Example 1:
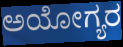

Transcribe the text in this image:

ಅಯೋಗ್ಯರ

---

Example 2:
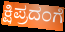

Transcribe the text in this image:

ಕ್ಷಿಪ್ರದಂಗೆ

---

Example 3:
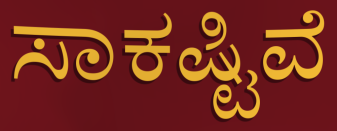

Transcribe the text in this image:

ಸಾಕಷ್ಟಿವೆ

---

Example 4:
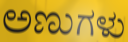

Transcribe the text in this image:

ಅಣುಗಳು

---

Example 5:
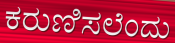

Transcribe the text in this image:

ಕರುಣಿಸಲೆಂದು